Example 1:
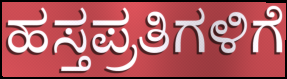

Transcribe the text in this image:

ಹಸ್ತಪ್ರತಿಗಳಿಗೆ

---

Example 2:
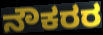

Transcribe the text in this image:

ನೌಕರರ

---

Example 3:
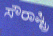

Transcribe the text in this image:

ಸೌರಾಷ್ಟ್ರಿ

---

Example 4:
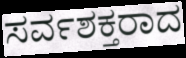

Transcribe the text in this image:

ಸರ್ವಶಕ್ತರಾದ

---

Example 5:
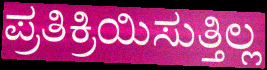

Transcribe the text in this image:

ಪ್ರತಿಕ್ರಿಯಿಸುತ್ತಿಲ್ಲ